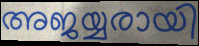
അജയ്യരായി